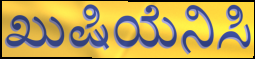
ಖುಷಿಯೆನಿಸಿ